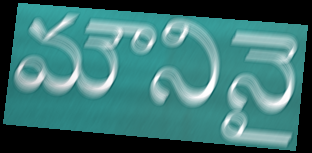
మౌనినై